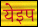
येइप